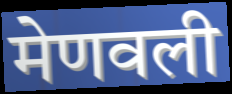
मेणवली